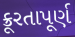
ક્રૂરતાપૂર્ણ